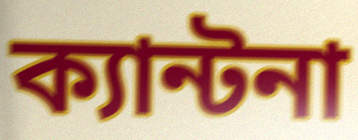
ক্যান্টনা